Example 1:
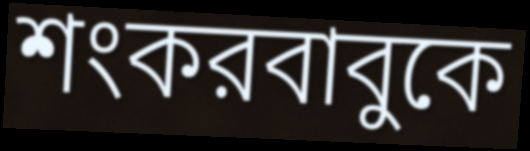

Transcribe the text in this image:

শংকরবাবুকে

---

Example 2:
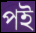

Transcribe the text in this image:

পই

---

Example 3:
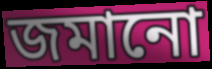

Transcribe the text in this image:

জমানো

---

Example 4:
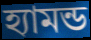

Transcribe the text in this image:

হ্যামন্ড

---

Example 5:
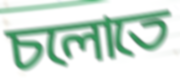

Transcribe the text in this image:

চলোতে